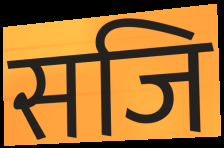
सजि